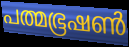
പത്മഭൂഷൺ